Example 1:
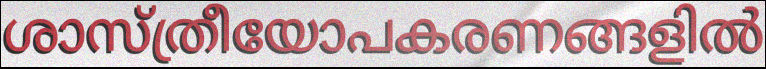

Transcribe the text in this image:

ശാസ്ത്രീയോപകരണങ്ങളിൽ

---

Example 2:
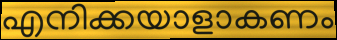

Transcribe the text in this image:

എനിക്കയാളാകണം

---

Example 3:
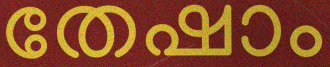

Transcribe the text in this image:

തേഷാം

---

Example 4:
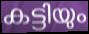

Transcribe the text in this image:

കട്ടിയും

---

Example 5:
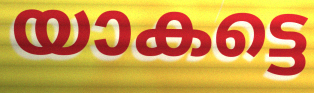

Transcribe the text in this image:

യാകട്ടെ